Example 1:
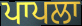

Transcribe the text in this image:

ਪਾਪਲਾ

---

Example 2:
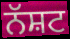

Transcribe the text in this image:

ਨੱਸ਼ਟ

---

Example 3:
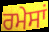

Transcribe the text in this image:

ਰਮੇਸਾਂ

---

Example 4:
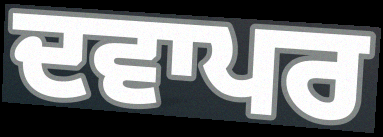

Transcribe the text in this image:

ਦਵਾਪਰ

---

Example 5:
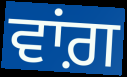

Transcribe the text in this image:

ਵਾਂਗ਼